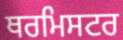
ਥਰਮਿਸਟਰ